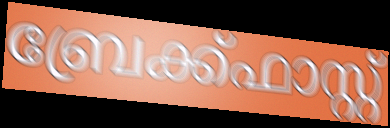
ബ്രേക്ക്ഫാസ്റ്റ്